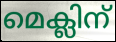
മെക്ലിന്